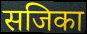
सजिका